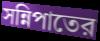
সন্নিপাতের